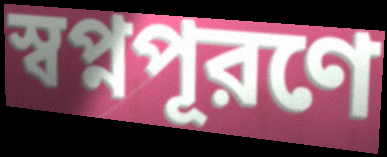
স্বপ্নপূরণে